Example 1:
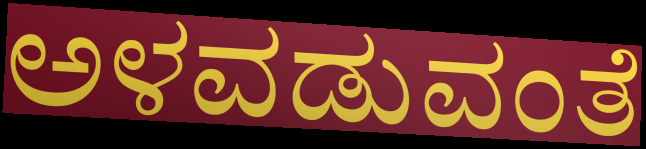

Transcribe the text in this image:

ಅಳವಡುವಂತೆ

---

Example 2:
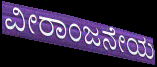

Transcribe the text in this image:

ವೀರಾಂಜನೇಯ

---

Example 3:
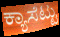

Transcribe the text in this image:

ಕ್ಯಾಸೆಟ್ಟು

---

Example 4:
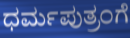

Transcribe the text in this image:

ಧರ್ಮಪುತ್ರಂಗೆ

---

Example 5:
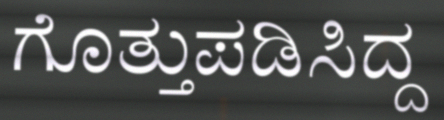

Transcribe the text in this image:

ಗೊತ್ತುಪಡಿಸಿದ್ದ